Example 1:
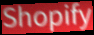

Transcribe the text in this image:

Shopify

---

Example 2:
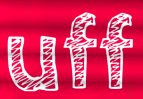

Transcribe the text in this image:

uff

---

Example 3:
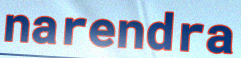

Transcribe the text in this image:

narendra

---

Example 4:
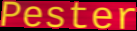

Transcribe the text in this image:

Pester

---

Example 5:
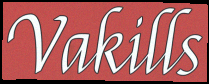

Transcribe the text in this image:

Vakills